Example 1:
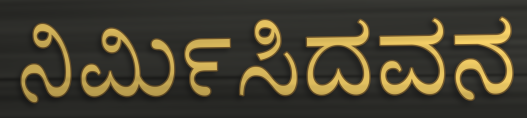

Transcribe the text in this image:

ನಿರ್ಮಿಸಿದವನ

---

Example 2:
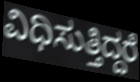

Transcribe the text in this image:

ವಿಧಿಸುತ್ತಿದ್ದರೆ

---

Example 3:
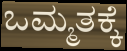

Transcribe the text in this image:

ಒಮ್ಮತಕ್ಕೆ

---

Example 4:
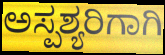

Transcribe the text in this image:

ಅಸ್ಪಶ್ಯರಿಗಾಗಿ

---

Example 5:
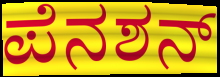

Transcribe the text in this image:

ಪೆನಶನ್